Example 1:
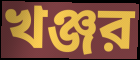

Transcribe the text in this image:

খঞ্জর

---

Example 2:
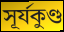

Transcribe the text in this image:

সূর্যকুণ্ড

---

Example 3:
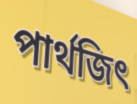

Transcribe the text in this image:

পার্থজিৎ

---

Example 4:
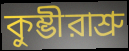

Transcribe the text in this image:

কুম্ভীরাশ্রু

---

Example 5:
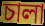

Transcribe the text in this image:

চালা